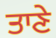
ਤਾਣੇ